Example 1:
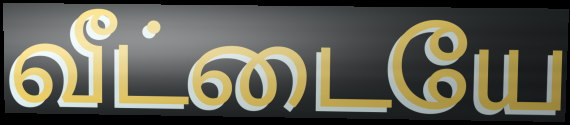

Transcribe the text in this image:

வீட்டையே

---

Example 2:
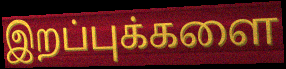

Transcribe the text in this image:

இறப்புக்களை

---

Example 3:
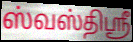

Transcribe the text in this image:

ஸ்வஸ்திஸ்ரீ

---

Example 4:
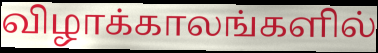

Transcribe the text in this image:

விழாக்காலங்களில்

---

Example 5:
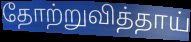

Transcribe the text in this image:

தோற்றுவித்தாய்